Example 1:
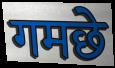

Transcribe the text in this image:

गमछे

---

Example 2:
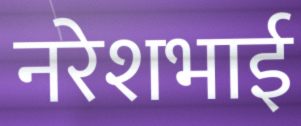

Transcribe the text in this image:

नरेशभाई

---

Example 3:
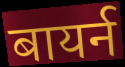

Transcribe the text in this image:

बायर्न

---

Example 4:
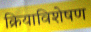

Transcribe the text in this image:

क्रियाविशेषण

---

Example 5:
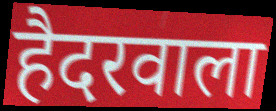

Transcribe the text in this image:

हैदरवाला